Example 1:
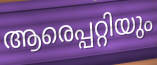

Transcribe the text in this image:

ആരെപ്പറ്റിയും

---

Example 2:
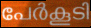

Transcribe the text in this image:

പേർകൂടി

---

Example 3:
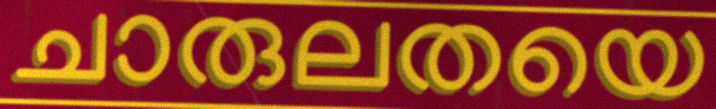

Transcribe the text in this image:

ചാരുലതയെ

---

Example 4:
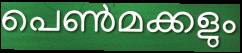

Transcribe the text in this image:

പെൺമക്കളും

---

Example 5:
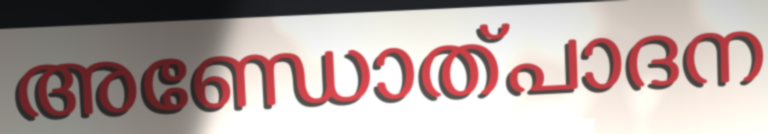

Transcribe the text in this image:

അണ്ഡോത്പാദന